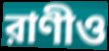
রাণীও